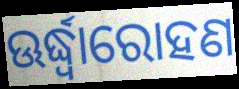
ଊର୍ଦ୍ଧ୍ୱାରୋହଣ